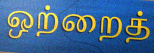
ஒற்றைத்